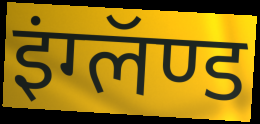
इंग्लॅण्ड